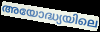
അയോദ്ധ്യയിലെ